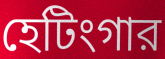
হেটিংগার